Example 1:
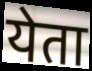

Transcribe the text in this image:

येता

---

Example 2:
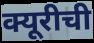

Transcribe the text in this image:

क्यूरीची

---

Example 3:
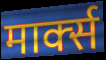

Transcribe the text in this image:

मार्क्‍स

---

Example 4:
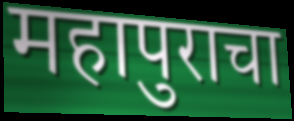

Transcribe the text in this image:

महापुराचा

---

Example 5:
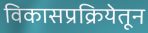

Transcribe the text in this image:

विकासप्रक्रियेतून